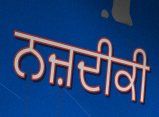
ਨਜ਼ਦੀਕੀ